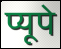
प्यूपे